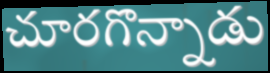
చూరగొన్నాడు